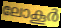
ലോകൂർ